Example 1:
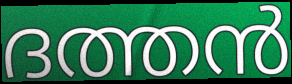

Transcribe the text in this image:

ദത്തൻ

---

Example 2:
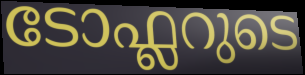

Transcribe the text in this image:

ടോഫ്ലറുടെ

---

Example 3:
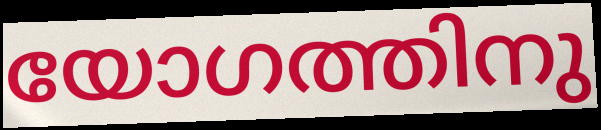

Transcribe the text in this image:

യോഗത്തിനു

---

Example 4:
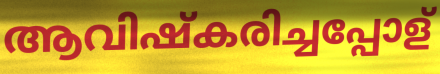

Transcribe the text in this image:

ആവിഷ്കരിച്ചപ്പോള്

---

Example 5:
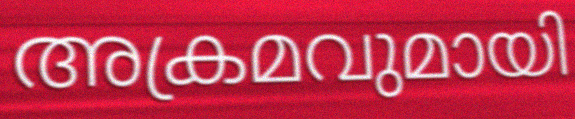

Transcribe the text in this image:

അക്രമവുമായി